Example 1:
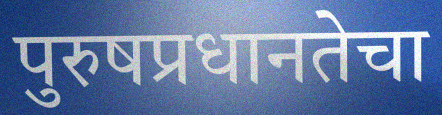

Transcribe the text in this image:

पुरुषप्रधानतेचा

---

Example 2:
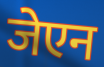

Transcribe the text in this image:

जेएन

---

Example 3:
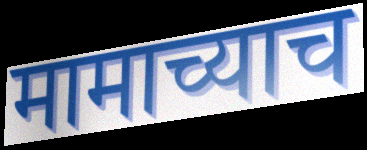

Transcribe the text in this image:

मामाच्याच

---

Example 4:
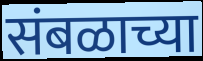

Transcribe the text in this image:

संबळाच्या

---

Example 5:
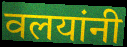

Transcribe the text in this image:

वलयांनी